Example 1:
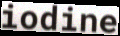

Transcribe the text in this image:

iodine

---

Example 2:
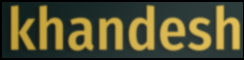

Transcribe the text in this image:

khandesh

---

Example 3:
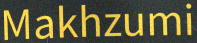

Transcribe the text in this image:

Makhzumi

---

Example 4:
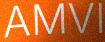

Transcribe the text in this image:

AMVI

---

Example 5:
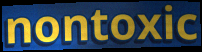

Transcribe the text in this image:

nontoxic